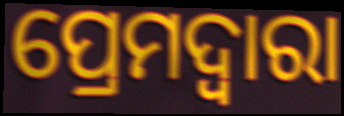
ପ୍ରେମଦ୍ୱାରା